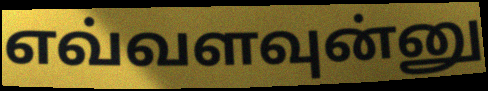
எவ்வளவுன்னு